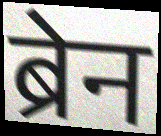
ब्रेन